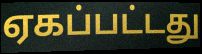
ஏகப்பட்டது